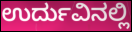
ಉರ್ದುವಿನಲ್ಲಿ